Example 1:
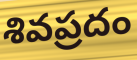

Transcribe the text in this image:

శివప్రదం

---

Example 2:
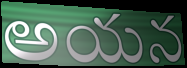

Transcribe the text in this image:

అయన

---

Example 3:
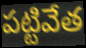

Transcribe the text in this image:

పట్టివేత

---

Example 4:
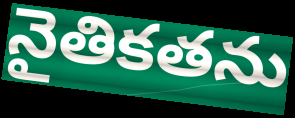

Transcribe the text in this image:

నైతికతను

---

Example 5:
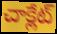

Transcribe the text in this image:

చాక్లేట్